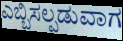
ಎಬ್ಬಿಸಲ್ಪಡುವಾಗ